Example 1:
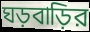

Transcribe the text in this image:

ঘড়বাড়ির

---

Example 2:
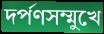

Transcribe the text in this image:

দর্পণসম্মুখে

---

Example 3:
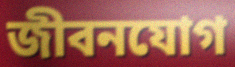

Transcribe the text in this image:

জীবনযোগ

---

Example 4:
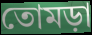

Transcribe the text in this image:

তোমড়া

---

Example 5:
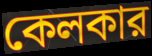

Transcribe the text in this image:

কেলকার